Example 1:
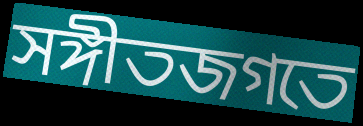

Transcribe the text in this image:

সঙ্গীতজগতে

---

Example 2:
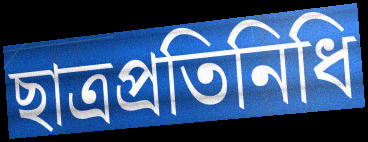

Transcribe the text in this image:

ছাত্রপ্রতিনিধি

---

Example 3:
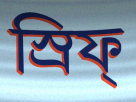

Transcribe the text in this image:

স্রিফ্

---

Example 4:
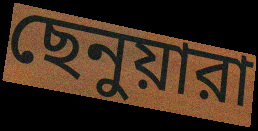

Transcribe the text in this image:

ছেনুয়ারা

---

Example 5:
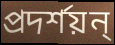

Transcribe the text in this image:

প্রদর্শয়ন্